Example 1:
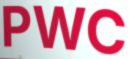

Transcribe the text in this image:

PWC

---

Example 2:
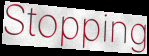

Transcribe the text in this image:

Stopping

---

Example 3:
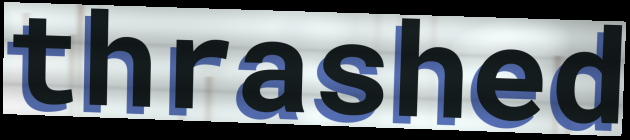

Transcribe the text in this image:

thrashed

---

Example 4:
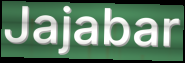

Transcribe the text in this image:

Jajabar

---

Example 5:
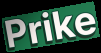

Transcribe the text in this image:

Prike